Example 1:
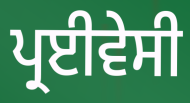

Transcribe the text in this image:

ਪ੍ਰਈਵੇਸੀ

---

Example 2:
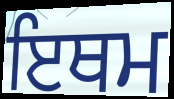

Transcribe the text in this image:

ਇਥਮ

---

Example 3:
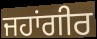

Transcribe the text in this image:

ਜਹਾਂਗੀਰ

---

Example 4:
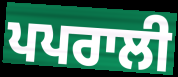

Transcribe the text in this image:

ਪਪਰਾਲੀ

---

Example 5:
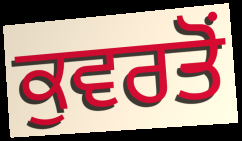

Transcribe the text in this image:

ਕੁਵਰਤੋਂ